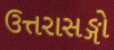
ઉત્તરાસઙ્ગો